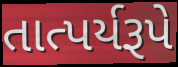
તાત્પર્યરૂપે